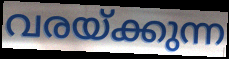
വരയ്ക്കുന്ന